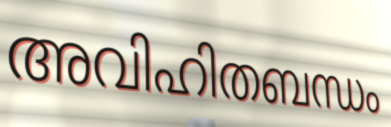
അവിഹിതബന്ധം